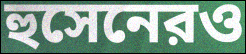
হুসেনেরও